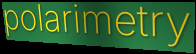
polarimetry